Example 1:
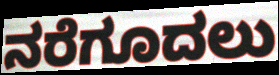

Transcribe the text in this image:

ನರೆಗೂದಲು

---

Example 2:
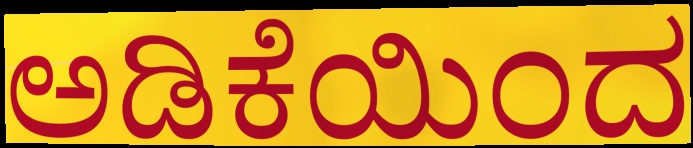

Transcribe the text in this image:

ಅಡಿಕೆಯಿಂದ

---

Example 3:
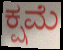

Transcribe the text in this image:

ಕ್ಷಮೆ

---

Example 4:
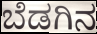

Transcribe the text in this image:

ಬೆಡಗಿನ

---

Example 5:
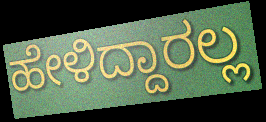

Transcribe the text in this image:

ಹೇಳಿದ್ದಾರಲ್ಲ